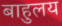
बाहुलय